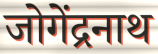
जोगेंद्रनाथ